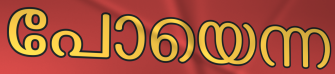
പോയെന്ന